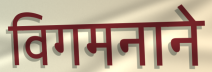
विगमनाने